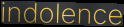
indolence